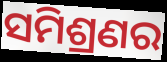
ସମିଶ୍ରଣର